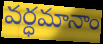
వర్ధమానాం